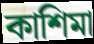
কাশিমা